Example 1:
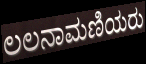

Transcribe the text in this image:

ಲಲನಾಮಣಿಯರು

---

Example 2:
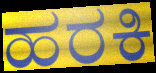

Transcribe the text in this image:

ಹರಕಿ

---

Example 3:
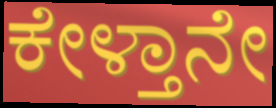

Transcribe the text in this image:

ಕೇಳ್ತಾನೇ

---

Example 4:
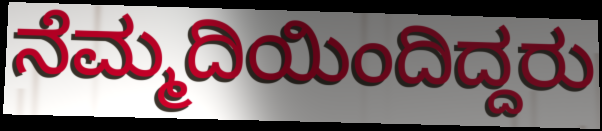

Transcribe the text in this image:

ನೆಮ್ಮದಿಯಿಂದಿದ್ದರು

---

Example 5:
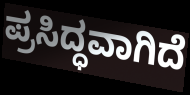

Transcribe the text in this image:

ಪ್ರಸಿದ್ಧವಾಗಿದೆ